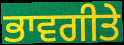
ਭਾਵਗੀਤੇ